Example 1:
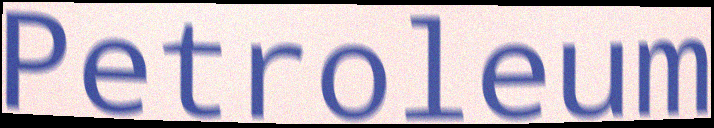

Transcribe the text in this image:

Petroleum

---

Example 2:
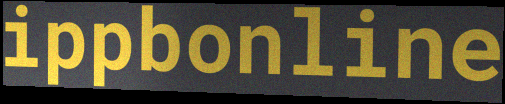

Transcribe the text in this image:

ippbonline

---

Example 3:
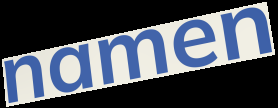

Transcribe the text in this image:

namen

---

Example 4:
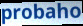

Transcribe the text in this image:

probaho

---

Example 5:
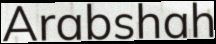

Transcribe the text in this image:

Arabshah